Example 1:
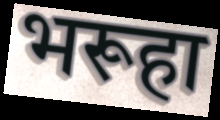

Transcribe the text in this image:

भरूहा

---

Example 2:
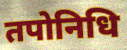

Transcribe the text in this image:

तपोनिधि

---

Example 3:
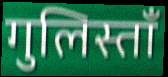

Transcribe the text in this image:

गुलिस्ताँ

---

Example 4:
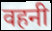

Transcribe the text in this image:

वहनी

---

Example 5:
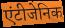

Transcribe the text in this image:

एंटीजेनिक